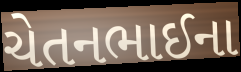
ચેતનભાઈના